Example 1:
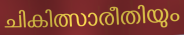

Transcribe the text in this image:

ചികിത്സാരീതിയും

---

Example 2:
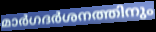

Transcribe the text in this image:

മാർഗദർശനത്തിനും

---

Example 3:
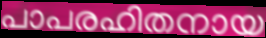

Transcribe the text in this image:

പാപരഹിതനായ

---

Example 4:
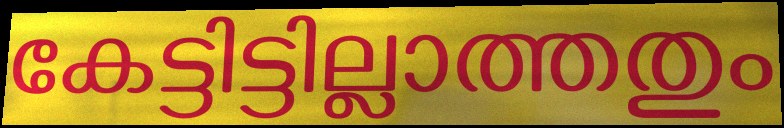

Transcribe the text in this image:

കേട്ടിട്ടില്ലാത്തതും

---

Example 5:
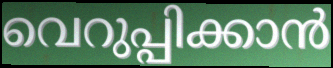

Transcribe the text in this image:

വെറുപ്പിക്കാൻ